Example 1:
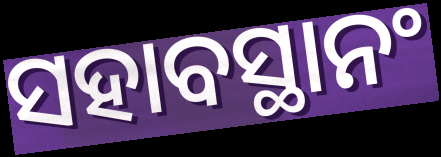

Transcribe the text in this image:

ସହାବସ୍ଥାନଂ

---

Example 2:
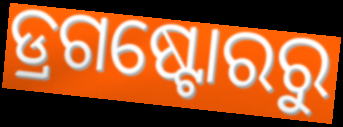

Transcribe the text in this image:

ଡ୍ରଗଷ୍ଟୋରରୁ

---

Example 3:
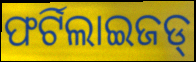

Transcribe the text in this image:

ଫର୍ଟିଲାଇଜଡ୍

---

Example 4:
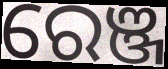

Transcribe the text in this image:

ରେଞ୍ଜ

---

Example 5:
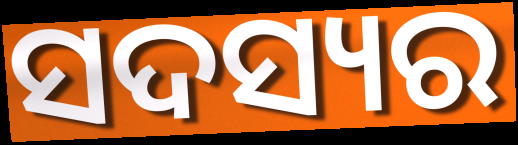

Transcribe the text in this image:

ସଦସ୍ୟର